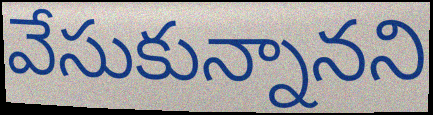
వేసుకున్నానని